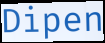
Dipen